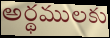
అర్థములకు